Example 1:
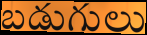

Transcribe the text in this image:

బడుగులు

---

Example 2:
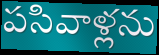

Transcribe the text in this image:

పసివాళ్లను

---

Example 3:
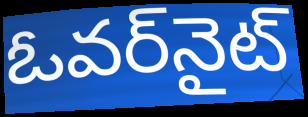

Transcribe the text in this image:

ఓవర్‌నైట్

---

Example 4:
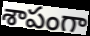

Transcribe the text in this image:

శాపంగా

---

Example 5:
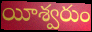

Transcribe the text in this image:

యీశ్వరుం